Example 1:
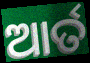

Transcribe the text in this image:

ଆର୍ତ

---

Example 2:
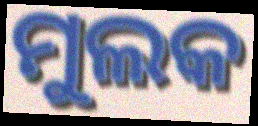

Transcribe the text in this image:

ମୁଲକ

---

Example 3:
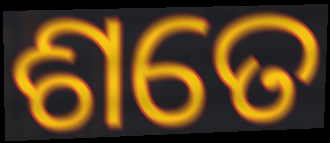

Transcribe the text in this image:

ଶତେ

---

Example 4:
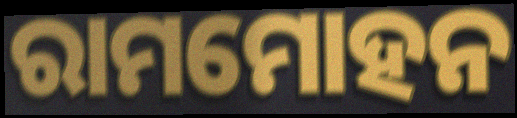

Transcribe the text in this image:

ରାମମୋହନ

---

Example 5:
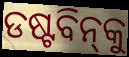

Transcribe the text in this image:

ଡଷ୍ଟବିନ୍‌କୁ